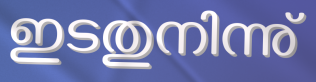
ഇടതുനിന്നു്